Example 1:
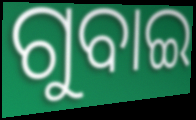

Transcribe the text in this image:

ଗୁବାଇ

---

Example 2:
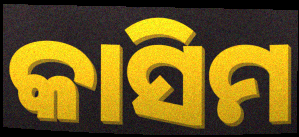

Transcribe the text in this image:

କାସିମ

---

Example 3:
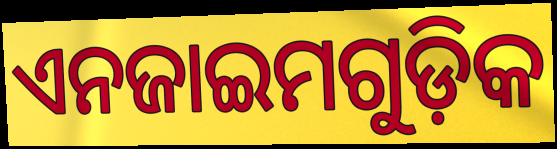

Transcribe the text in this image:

ଏନଜାଇମଗୁଡ଼ିକ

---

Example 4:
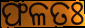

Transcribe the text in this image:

ଫଳତଃ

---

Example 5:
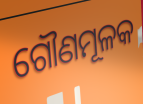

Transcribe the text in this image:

ଗୌଣମୂଳକ